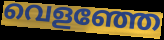
വെളഞ്ഞേ